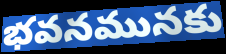
భవనమునకు